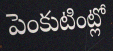
పెంకుటింట్లో